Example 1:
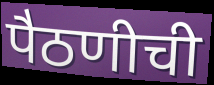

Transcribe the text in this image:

पैठणीची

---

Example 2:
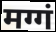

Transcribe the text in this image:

मग्गं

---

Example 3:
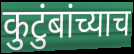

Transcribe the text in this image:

कुटुंबांच्याच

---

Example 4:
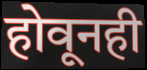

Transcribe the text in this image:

होवूनही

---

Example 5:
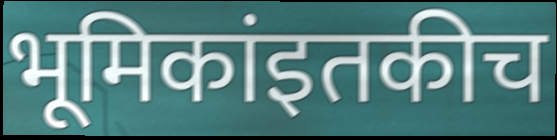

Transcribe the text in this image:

भूमिकांइतकीच